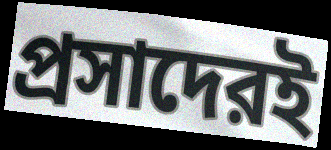
প্রসাদেরই